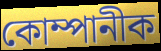
কোম্পানীক